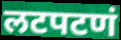
लटपटणं